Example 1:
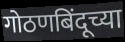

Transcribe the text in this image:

गोठणबिंदूच्या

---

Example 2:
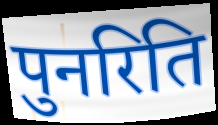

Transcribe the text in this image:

पुनरिति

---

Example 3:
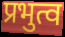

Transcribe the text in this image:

प्रभुत्व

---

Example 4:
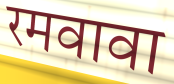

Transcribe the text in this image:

रमवावा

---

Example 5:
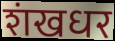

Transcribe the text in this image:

शंखधर